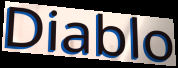
Diablo